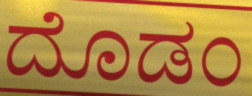
ದೊಡಂ